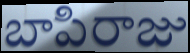
బాపిరాజు